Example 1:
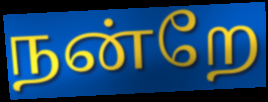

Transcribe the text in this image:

நன்றே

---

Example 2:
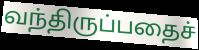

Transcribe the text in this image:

வந்திருப்பதைச்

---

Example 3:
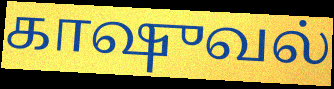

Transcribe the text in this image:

காஷுவல்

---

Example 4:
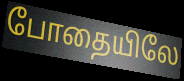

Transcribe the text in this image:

போதையிலே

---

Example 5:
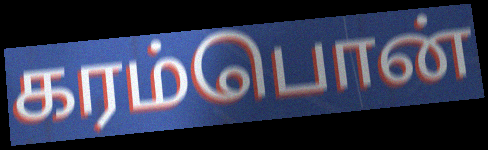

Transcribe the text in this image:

கரம்பொன்